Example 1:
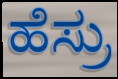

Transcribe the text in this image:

ಹೆಸ್ರು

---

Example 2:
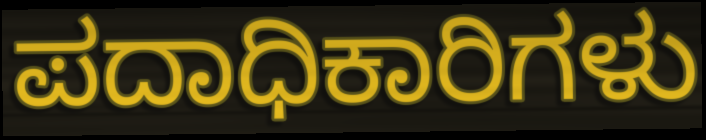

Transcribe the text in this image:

ಪದಾಧಿಕಾರಿಗಳು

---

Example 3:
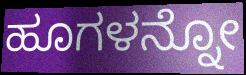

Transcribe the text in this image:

ಹೂಗಳನ್ನೋ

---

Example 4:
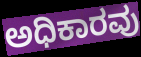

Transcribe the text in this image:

ಅಧಿಕಾರವು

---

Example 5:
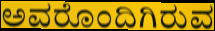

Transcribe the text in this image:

ಅವರೊಂದಿಗಿರುವ